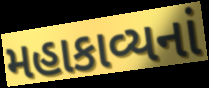
મહાકાવ્યનાં